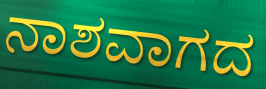
ನಾಶವಾಗದ